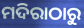
ମଦିରାଠାରୁ